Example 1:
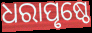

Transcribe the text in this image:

ଧରାପୃଷ୍ଠେ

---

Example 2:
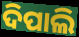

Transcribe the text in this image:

ଦିପାଲି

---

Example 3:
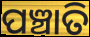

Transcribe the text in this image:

ପଞ୍ଚାତି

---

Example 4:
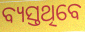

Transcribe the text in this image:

ବ୍ୟସ୍ତଥିବେ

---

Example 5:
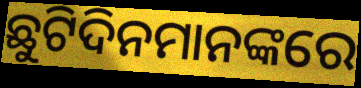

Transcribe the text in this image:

ଛୁଟିଦିନମାନଙ୍କରେ